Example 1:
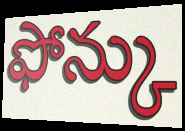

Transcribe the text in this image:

ఫోన్కు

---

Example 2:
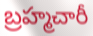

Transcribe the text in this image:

బ్రహ్మచారీ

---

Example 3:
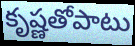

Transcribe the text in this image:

కృష్ణతోపాటు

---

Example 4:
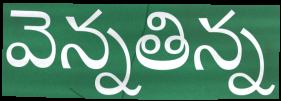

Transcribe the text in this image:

వెన్నతిన్న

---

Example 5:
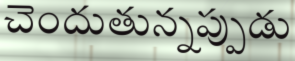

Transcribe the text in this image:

చెందుతున్నప్పుడు